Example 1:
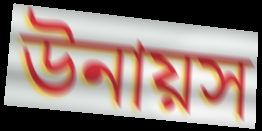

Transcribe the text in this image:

উনায়স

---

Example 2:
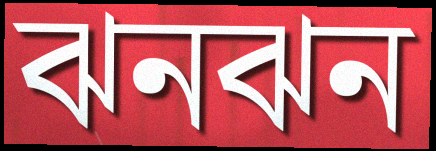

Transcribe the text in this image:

ঝনঝন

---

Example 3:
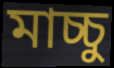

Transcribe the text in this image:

মাচ্চু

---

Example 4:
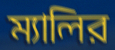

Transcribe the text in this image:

ম্যালির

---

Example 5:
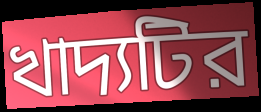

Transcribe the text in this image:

খাদ্যটির